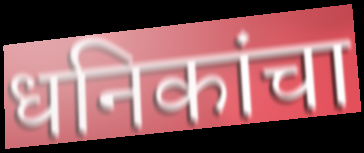
धनिकांचा